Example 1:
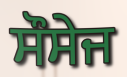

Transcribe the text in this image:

ਸੌਸੇਜ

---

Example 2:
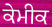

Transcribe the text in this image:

ਕੇਮੀਕ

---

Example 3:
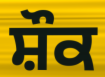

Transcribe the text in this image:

ਸ਼ੌਕ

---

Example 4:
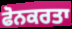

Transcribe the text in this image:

ਫੋਨਕਰਤਾ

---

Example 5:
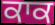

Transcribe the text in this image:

ਕਾਕ